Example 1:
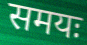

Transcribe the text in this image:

समयः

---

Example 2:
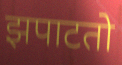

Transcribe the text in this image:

झपाटतो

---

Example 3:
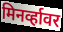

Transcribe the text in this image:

मिनर्व्हावर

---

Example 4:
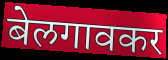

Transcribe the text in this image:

बेलगावकर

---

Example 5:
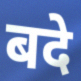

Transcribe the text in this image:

बदे